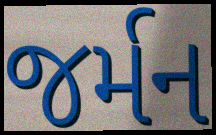
જર્મન